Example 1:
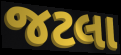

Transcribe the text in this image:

જટલા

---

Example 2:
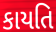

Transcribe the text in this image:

કાયતિ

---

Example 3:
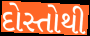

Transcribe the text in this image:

દોસ્તોથી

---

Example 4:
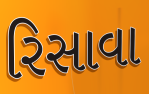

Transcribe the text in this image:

રિસાવા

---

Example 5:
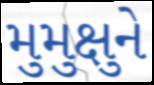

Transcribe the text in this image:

મુમુક્ષુને